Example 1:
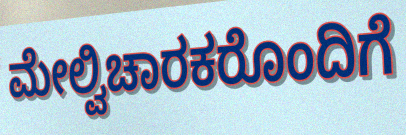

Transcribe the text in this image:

ಮೇಲ್ವಿಚಾರಕರೊಂದಿಗೆ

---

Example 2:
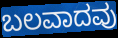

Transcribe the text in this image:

ಬಲವಾದವು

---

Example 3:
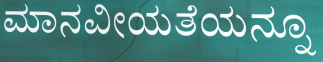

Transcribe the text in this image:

ಮಾನವೀಯತೆಯನ್ನೂ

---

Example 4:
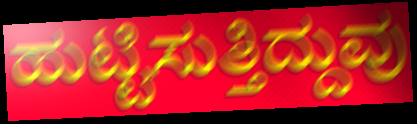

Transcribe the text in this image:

ಹುಟ್ಟಿಸುತ್ತಿದ್ದುವು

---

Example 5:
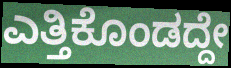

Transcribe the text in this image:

ಎತ್ತಿಕೊಂಡದ್ದೇ